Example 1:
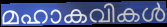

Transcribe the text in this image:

മഹാകവികൾ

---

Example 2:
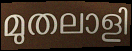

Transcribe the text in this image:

മുതലാളി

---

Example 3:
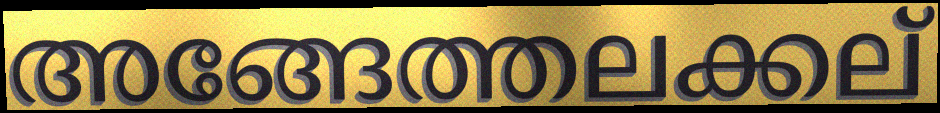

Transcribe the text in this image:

അങ്ങേത്തലക്കല്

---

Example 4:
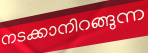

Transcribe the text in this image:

നടക്കാനിറങ്ങുന്ന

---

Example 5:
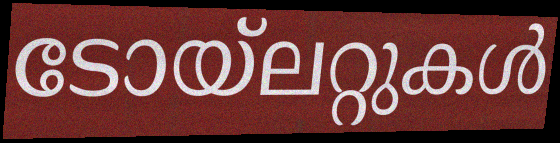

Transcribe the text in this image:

ടോയ്ലറ്റുകൾ